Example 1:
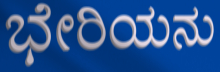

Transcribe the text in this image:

ಭೇರಿಯನು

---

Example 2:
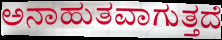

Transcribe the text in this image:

ಅನಾಹುತವಾಗುತ್ತದೆ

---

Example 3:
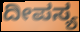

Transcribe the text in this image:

ದೀಪಸ್ಯ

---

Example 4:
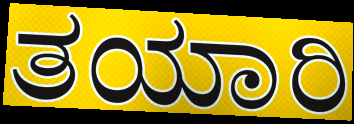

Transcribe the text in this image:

ತಯಾರಿ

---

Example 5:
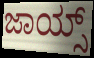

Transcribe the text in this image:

ಜಾಯ್ಸ್